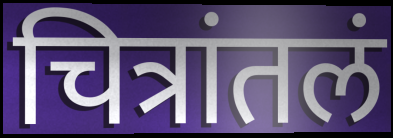
चित्रांतलं